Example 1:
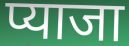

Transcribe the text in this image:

प्याजा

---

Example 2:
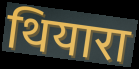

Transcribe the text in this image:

थियारा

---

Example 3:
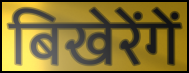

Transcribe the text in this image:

बिखेरेंगें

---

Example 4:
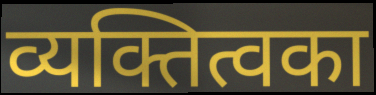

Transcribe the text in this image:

व्यक्तित्वका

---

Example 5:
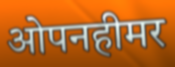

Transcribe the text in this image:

ओपनहीमर